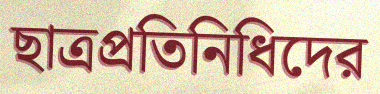
ছাত্রপ্রতিনিধিদের